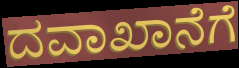
ದವಾಖಾನೆಗೆ